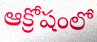
ఆక్రోషంలో